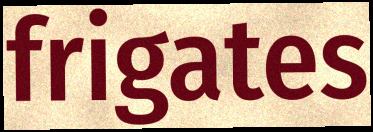
frigates